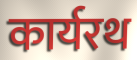
कार्यरथ